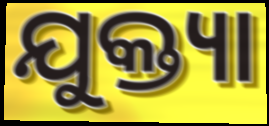
ଯୁକ୍ତ୍ୟା